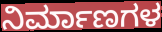
ನಿರ್ಮಾಣಗಳ